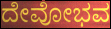
ದೇವೋಭವ